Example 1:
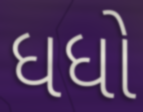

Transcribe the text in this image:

ધધો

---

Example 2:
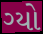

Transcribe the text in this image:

ગ્યો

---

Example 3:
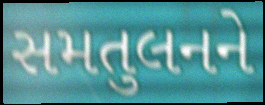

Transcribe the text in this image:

સમતુલનને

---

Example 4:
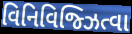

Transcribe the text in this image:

વિનિવિજ્ઝિત્વા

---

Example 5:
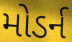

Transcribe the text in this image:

મોડર્ન